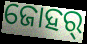
ଜୋହର୍